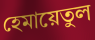
হেমায়েতুল